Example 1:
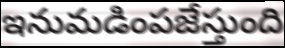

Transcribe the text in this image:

ఇనుమడింపజేస్తుంది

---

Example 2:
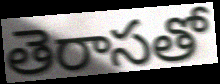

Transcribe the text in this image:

తెరాసతో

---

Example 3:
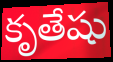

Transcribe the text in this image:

కృతేషు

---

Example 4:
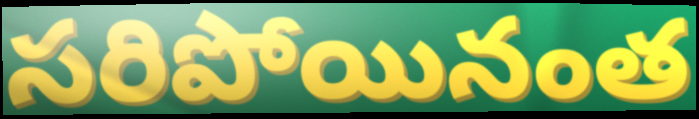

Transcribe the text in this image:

సరిపోయినంత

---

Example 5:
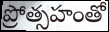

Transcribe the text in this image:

ప్రోత్సహంతో